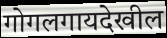
गोगलगायदेखील